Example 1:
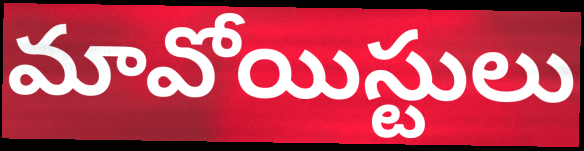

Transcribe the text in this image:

మావోయిస్టులు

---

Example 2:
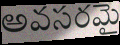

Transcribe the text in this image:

అవసరమై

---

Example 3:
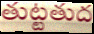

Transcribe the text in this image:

తుట్టతుద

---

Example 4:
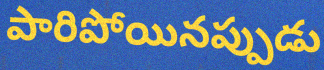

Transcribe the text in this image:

పారిపోయినప్పుడు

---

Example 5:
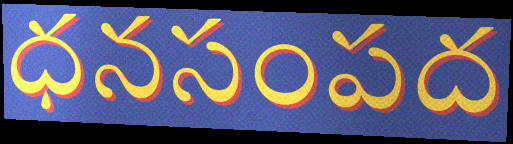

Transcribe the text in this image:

ధనసంపద